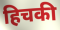
हिचकी